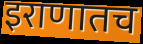
इराणातच